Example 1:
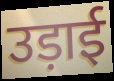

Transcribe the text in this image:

उड़ाई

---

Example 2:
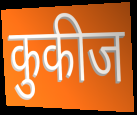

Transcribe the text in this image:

कुकीज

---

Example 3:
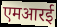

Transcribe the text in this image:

एमआरई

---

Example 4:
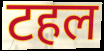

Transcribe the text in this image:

टहल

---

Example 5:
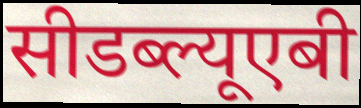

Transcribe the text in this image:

सीडब्ल्यूएबी